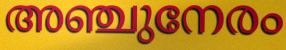
അഞ്ചുനേരം